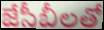
జేసీబీలతో